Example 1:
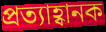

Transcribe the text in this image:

প্ৰত্যাহ্বানক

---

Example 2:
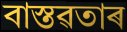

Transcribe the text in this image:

বাস্তৱতাৰ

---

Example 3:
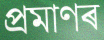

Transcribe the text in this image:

প্ৰমাণৰ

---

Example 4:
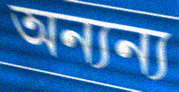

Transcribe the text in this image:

অন্যন্য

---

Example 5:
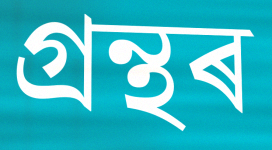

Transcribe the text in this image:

গ্ৰন্থৰ